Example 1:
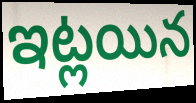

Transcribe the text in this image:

ఇట్లయిన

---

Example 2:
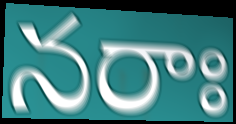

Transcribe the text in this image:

నరాః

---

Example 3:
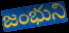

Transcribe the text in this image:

జంభుని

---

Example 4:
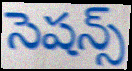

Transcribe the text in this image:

సెషన్స్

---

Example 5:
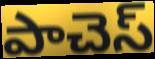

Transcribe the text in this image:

పాచెస్